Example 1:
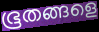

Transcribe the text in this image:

ഭൂതങ്ങളെ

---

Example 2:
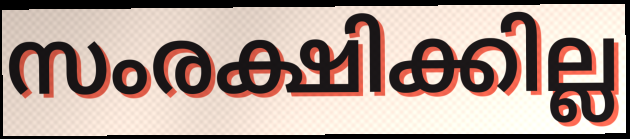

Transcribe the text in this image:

സംരക്ഷിക്കില്ല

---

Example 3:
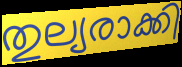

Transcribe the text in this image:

തുല്യരാക്കി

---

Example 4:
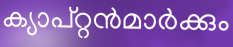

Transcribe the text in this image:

ക്യാപ്റ്റൻമാർക്കും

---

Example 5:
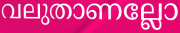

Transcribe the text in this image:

വലുതാണല്ലോ